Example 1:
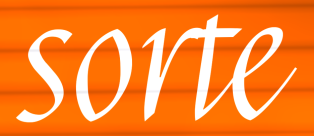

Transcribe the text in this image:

sorte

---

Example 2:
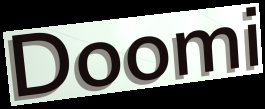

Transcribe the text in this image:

Doomi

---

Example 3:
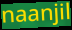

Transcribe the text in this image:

naanjil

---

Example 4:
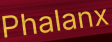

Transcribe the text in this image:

Phalanx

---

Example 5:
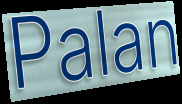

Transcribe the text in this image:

Palan